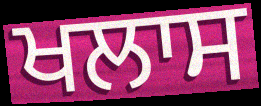
ਖਲਾਸ